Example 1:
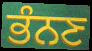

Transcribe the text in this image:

ਭੰਨਣ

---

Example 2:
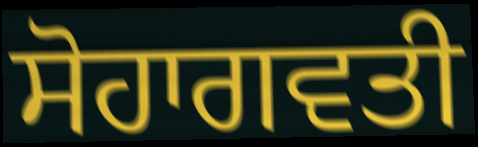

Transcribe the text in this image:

ਸੋਹਾਗਵਤੀ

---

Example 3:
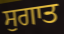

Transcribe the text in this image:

ਸੁਗਾਤ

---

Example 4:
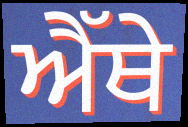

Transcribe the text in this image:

ਐੱਥੇ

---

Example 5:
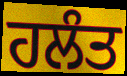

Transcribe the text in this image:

ਹਲੰਤ